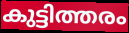
കുട്ടിത്തരം